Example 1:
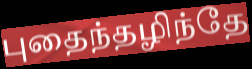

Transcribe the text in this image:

புதைந்தழிந்தே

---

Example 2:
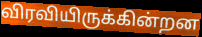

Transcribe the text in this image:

விரவியிருக்கின்றன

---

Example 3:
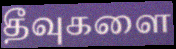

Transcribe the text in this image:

தீவுகளை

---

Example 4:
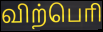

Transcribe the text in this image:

விற்பெரி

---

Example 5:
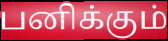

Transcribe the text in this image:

பனிக்கும்